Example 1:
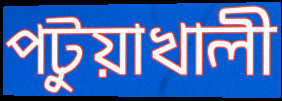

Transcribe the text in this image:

পটুয়াখালী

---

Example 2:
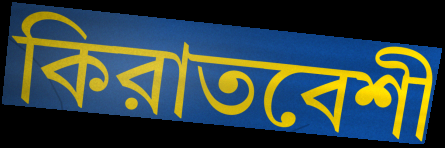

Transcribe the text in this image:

কিরাতবেশী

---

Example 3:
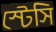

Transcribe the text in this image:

স্টেসি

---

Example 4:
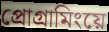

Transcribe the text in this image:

প্রোগ্রামিংয়ে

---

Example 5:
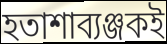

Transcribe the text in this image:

হতাশাব্যঞ্জকই